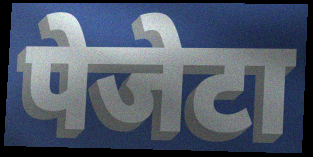
पेजेटा